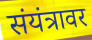
संयंत्रावर